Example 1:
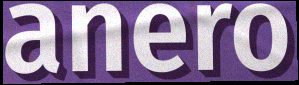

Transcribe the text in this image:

anero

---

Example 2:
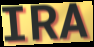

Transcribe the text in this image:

IRA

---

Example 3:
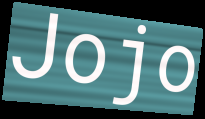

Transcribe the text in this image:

Jojo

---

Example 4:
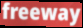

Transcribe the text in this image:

freeway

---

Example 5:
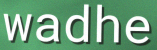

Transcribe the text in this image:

wadhe